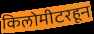
किलोमीटरहून